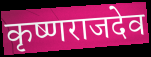
कृष्णराजदेव